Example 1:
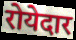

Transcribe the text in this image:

रोयेदार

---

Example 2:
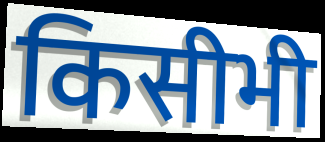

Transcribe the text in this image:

किसीभी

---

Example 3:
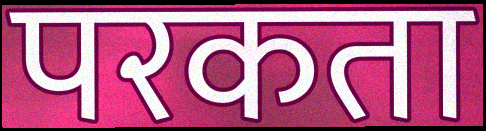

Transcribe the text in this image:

परकता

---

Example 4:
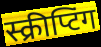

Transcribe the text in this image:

स्क्रीप्टिंग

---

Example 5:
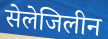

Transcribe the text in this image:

सेलेजिलीन